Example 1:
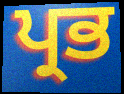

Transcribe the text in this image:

ਪ੍ਰਭ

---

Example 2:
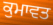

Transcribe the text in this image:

ਕੁਮਾਵਤ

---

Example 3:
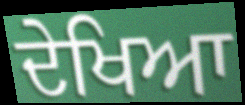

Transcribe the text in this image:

ਦੇਖਿਆ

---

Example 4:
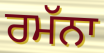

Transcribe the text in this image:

ਰਮੱਨਾ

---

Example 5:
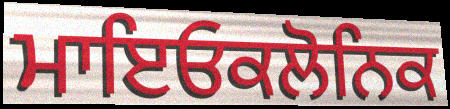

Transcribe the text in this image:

ਮਾਇਓਕਲੋਨਿਕ